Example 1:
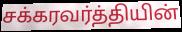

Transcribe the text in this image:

சக்கரவர்த்தியின்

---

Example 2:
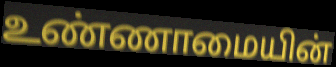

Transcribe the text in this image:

உண்ணாமையின்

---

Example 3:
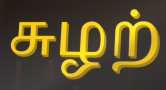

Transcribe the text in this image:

சுழற்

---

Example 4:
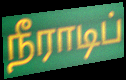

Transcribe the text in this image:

நீராடிப்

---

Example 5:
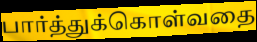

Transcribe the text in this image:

பார்த்துக்கொள்வதை